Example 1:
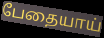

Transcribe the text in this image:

பேதையாய்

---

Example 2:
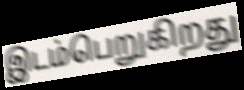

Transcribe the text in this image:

இடம்பெறுகிறது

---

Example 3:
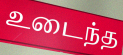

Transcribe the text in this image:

உடைந்த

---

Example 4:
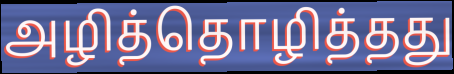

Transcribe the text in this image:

அழித்தொழித்தது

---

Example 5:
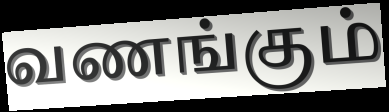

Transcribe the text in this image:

வணங்கும்